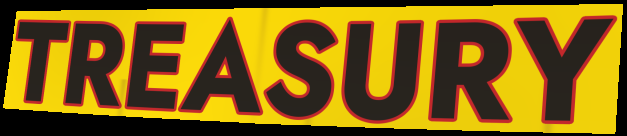
TREASURY